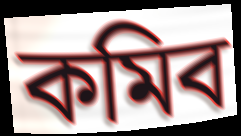
কমিব